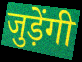
जुड़ेंगी